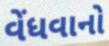
વેંધવાનો